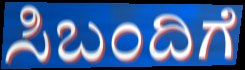
ಸಿಬಂದಿಗೆ